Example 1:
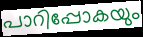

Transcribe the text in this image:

പാറിപ്പോകയും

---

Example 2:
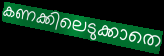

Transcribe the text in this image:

കണക്കിലെടുക്കാതെ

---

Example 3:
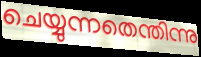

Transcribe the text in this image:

ചെയ്യുന്നതെന്തിന്നു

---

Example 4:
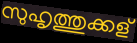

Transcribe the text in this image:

സുഹൃത്തുക്കള്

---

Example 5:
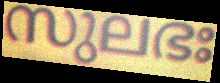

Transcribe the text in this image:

സുലഭഃ